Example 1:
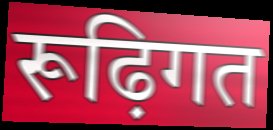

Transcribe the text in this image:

रूढ़िगत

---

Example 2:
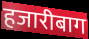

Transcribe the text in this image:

हजारीबाग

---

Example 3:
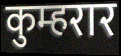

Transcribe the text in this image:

कुम्हरार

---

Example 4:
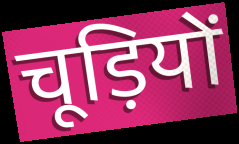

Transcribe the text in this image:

चूड़ियों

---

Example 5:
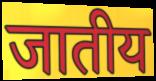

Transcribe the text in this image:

जातीय